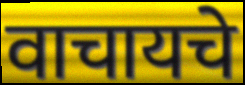
वाचायचे